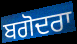
ਬਗੋਦਰਾ